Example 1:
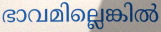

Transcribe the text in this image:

ഭാവമില്ലെങ്കിൽ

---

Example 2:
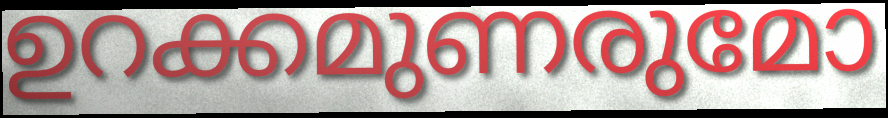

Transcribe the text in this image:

ഉറക്കമുണരുമോ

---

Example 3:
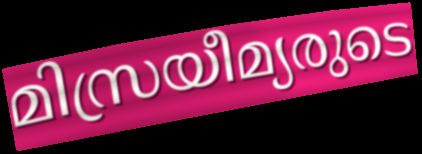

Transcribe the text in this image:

മിസ്രയീമ്യരുടെ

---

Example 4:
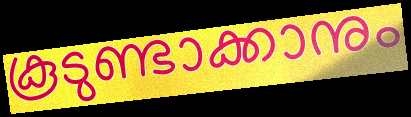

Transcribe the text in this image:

കൂടുണ്ടാക്കാനും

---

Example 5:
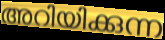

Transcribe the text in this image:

അറിയിക്കുന്ന